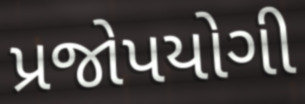
પ્રજોપયોગી